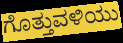
ಗೊತ್ತುವಳಿಯು